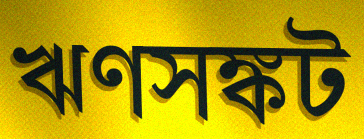
ঋণসঙ্কট